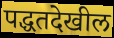
पद्धतदेखील